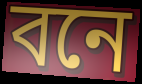
বনে